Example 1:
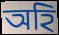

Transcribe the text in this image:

অহি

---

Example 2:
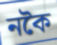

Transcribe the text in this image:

নকৈ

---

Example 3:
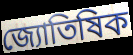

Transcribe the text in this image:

জ্যোতিষিক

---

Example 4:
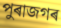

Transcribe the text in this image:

পুৰাজগৰ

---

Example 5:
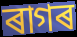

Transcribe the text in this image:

ৰাগৰ